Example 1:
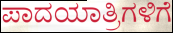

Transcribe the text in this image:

ಪಾದಯಾತ್ರಿಗಳಿಗೆ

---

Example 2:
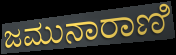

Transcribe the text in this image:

ಜಮುನಾರಾಣಿ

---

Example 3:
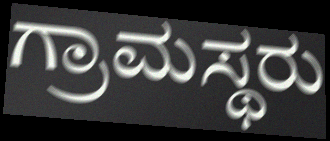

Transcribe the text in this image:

ಗ್ರಾಮಸ್ಥರು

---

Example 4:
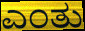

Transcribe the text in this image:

ಎಂತು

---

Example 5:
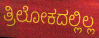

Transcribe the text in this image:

ತ್ರಿಲೋಕದಲ್ಲಿಲ್ಲ